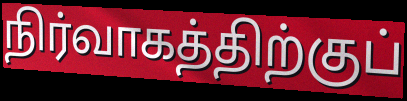
நிர்வாகத்திற்குப்